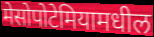
मेसोपोटेमियामधील